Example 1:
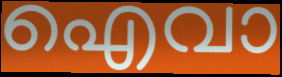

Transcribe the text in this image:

ഐവാ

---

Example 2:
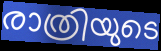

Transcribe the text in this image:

രാത്രിയുടെ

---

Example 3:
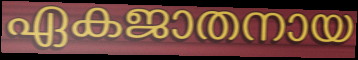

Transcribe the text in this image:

ഏകജാതനായ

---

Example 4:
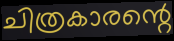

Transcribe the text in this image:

ചിത്രകാരന്റെ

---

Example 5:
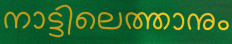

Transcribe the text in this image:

നാട്ടിലെത്താനും